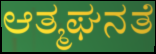
ಆತ್ಮಘನತೆ